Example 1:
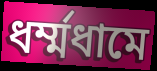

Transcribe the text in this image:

ধর্ম্মধামে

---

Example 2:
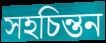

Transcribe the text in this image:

সহচিন্তন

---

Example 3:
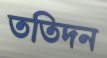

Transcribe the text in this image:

ততিদন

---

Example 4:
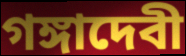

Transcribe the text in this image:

গঙ্গাদেবী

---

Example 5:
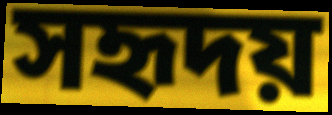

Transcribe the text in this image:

সহৃদয়